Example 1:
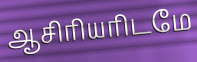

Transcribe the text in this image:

ஆசிரியரிடமே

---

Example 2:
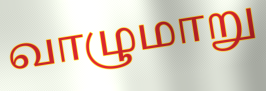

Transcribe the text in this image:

வாழுமாறு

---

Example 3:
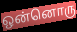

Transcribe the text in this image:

ஒன்னொரு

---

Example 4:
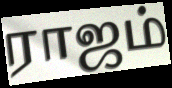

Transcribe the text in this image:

ராஜம்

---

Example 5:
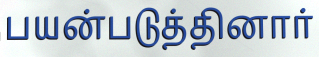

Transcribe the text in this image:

பயன்படுத்தினார்